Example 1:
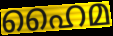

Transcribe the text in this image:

ഹൈമ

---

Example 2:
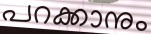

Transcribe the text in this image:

പറക്കാനും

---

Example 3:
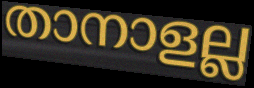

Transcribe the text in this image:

താനാളല്ല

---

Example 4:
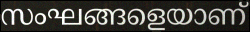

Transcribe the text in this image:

സംഘങ്ങളെയാണ്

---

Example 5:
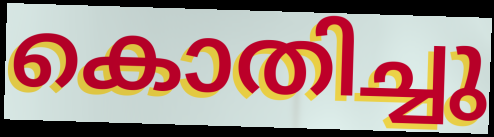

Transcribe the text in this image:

കൊതിച്ചു